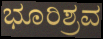
ಭೂರಿಶ್ರವ